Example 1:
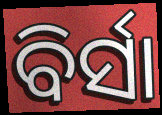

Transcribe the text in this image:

ବିର୍ସା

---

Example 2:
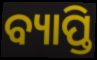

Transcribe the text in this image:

ବ୍ୟାପ୍ତି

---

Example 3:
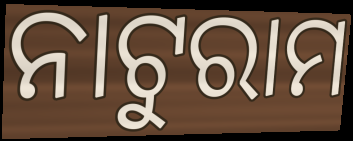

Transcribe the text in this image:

ନାଟୁରାମ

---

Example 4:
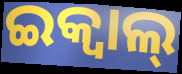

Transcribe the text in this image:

ଇକ୍ୱାଲ୍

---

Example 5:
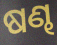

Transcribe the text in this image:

ଷଣ୍ଢ